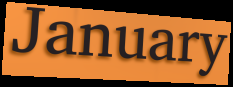
January